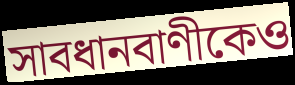
সাবধানবাণীকেও